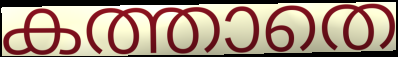
കത്താതെ